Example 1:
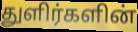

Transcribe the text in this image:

துளிர்களின்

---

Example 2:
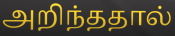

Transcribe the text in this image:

அறிந்ததால்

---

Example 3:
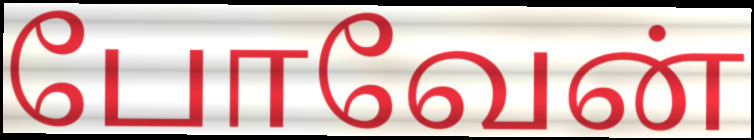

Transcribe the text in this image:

போவேன்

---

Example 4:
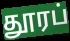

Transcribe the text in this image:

தூரப்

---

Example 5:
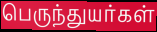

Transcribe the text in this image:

பெருந்துயர்கள்